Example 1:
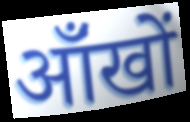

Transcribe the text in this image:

आंँखों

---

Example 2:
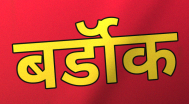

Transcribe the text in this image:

बर्डॉक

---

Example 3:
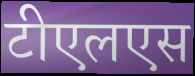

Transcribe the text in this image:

टीएलएस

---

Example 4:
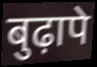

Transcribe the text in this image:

बुढ़ापे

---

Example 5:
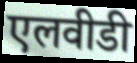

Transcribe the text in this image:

एलवीडी